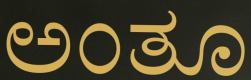
ಅಂತೂ